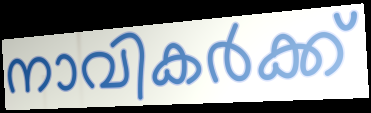
നാവികർക്ക്